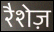
रैशेज़